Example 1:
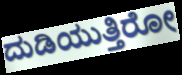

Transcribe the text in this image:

ದುಡಿಯುತ್ತಿರೋ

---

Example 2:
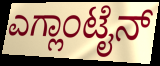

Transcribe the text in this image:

ಎಗ್ಲಾಂಟೈನ್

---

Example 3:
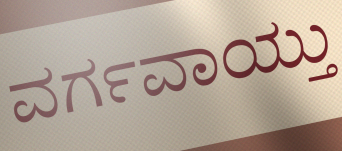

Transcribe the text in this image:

ವರ್ಗವಾಯ್ತು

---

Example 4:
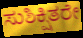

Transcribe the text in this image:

ಸುಶಿಕ್ಷಿತರೇ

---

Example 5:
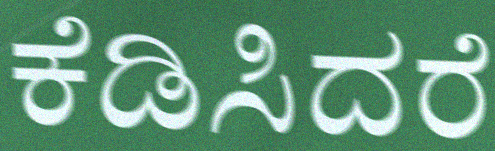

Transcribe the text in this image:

ಕೆಡಿಸಿದರೆ